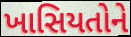
ખાસિયતોને